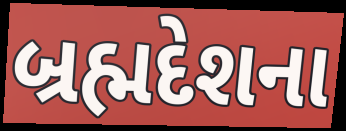
બ્રહ્મદેશના